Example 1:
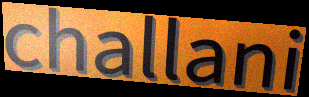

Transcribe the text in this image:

challani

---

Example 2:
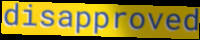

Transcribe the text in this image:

disapproved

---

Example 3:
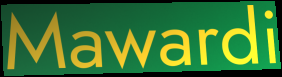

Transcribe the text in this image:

Mawardi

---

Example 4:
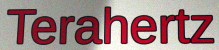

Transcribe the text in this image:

Terahertz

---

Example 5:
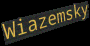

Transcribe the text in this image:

Wiazemsky